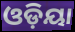
ଓଡ଼ିୟା